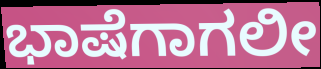
ಭಾಷೆಗಾಗಲೀ